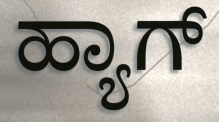
ಹ್ಯಾಗ್